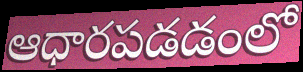
ఆధారపడడంలో